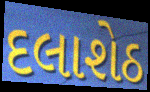
દલાશેઠ